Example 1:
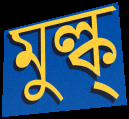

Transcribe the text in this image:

মুল্ক্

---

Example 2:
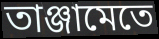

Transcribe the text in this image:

তাঞ্জামেতে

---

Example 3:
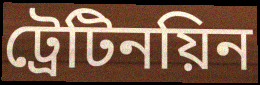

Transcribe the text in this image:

ট্রেটিনয়িন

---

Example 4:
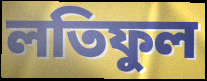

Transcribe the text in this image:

লতিফুল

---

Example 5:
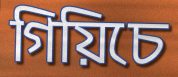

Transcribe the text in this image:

গিয়িচে